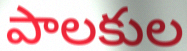
పాలకుల